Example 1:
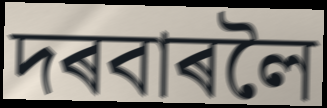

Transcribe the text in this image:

দৰবাৰলৈ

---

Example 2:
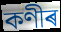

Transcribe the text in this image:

কণীৰ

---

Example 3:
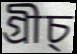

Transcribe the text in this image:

গ্ৰীচ্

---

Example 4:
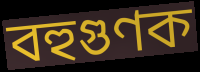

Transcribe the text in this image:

বহুগুণক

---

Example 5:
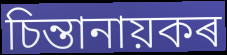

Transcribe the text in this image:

চিন্তানায়কৰ